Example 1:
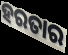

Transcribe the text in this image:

ହରତାର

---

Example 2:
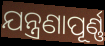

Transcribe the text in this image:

ଯନ୍ତ୍ରଣାପୂର୍ଣ୍ଣ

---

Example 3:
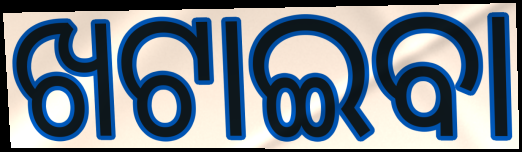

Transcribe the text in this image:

ଖଟାଇବା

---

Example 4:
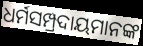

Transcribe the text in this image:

ଧର୍ମସମ୍ପ୍ରଦାୟମାନଙ୍କ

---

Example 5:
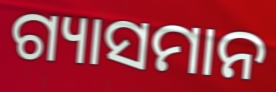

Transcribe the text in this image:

ଗ୍ୟାସମାନ